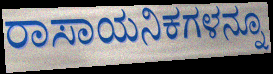
ರಾಸಾಯನಿಕಗಳನ್ನೂ